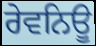
ਰੇਵਨਿਊ